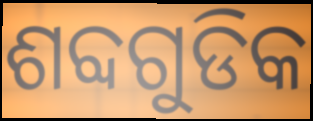
ଶବ୍ଦଗୁଡିକ